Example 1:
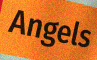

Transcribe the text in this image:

Angels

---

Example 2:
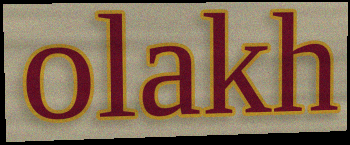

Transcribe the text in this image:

olakh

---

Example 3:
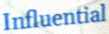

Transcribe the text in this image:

Influential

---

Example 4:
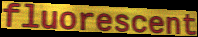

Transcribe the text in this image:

fluorescent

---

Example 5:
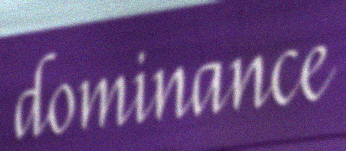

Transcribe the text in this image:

dominance